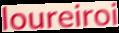
loureiroi